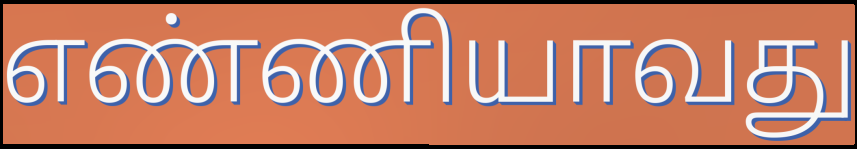
எண்ணியாவது